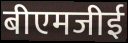
बीएमजीई